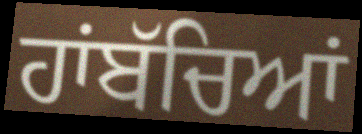
ਹਾਂਬੱਚਿਆਂ